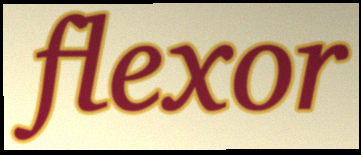
flexor